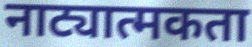
नाट्यात्मकता